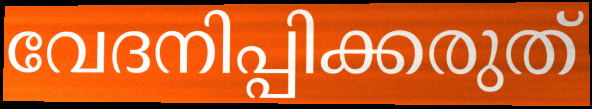
വേദനിപ്പിക്കരുത്